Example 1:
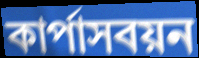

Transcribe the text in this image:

কার্পাসবয়ন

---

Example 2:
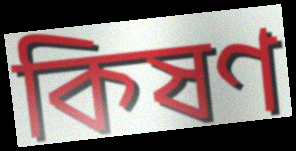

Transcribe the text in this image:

কিষণ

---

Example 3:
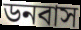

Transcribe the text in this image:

ডনবাস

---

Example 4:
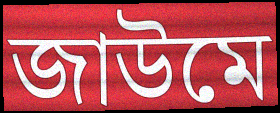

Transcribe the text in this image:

জাউমে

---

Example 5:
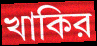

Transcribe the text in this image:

খাকির